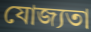
যোজ্যতা